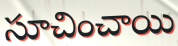
సూచించాయి